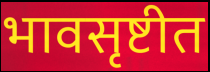
भावसृष्टीत